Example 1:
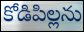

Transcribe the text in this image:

కోడిపిల్లను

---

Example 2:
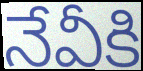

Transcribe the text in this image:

నేవీకి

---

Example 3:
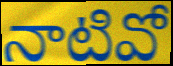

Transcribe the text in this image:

నాటివో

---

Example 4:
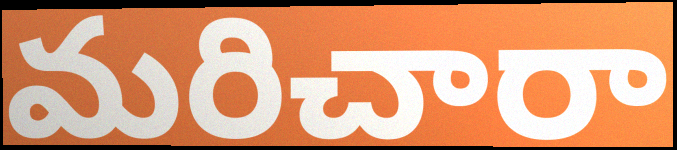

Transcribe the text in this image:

మరిచారా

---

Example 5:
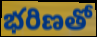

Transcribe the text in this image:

భరిణతో